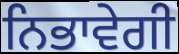
ਨਿਭਾਵੇਗੀ